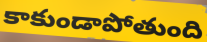
కాకుండాపోతుంది